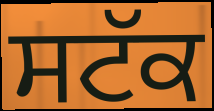
ਸਟੱਕ